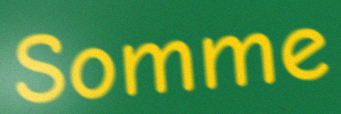
Somme